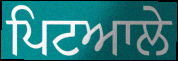
ਪਿਟਆਲੇ